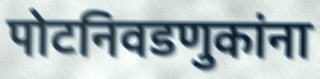
पोटनिवडणुकांना